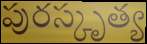
పురస్కృత్య